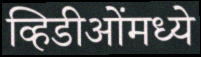
व्हिडीओंमध्ये